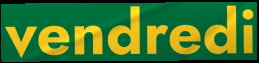
vendredi